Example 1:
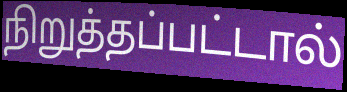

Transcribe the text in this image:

நிறுத்தப்பட்டால்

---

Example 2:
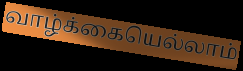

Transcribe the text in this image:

வாழ்க்கையெல்லாம்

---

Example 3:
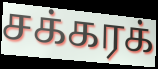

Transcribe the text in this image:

சக்கரக்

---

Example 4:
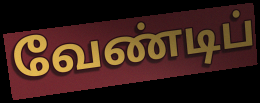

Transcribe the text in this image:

வேண்டிப்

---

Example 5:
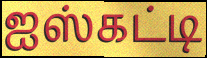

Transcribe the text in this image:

ஐஸ்கட்டி